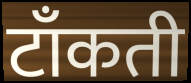
टाँकती